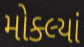
મોક્લ્યાં